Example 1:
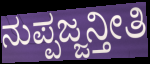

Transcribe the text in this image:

ನುಪ್ಪಜ್ಜನ್ತೀತಿ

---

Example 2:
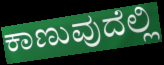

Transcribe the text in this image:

ಕಾಣುವುದೆಲ್ಲಿ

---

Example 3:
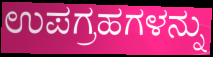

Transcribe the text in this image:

ಉಪಗ್ರಹಗಳನ್ನು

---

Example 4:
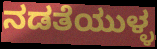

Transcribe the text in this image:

ನಡತೆಯುಳ್ಳ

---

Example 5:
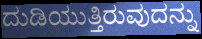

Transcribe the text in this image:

ದುಡಿಯುತ್ತಿರುವುದನ್ನು